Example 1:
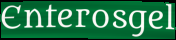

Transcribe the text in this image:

Enterosgel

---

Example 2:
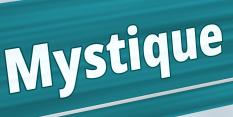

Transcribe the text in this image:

Mystique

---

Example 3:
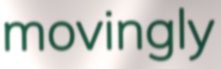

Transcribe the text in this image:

movingly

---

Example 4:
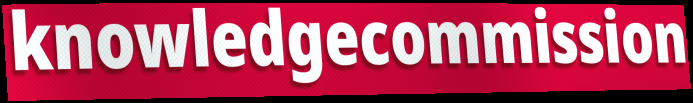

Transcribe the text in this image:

knowledgecommission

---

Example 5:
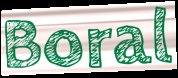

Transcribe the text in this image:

Boral